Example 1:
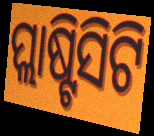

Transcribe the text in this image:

ପ୍ଲାଷ୍ଟିସିଟି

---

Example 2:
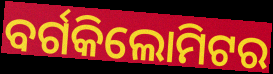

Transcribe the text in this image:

ବର୍ଗକିଲୋମିଟର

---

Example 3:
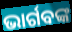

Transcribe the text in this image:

ଭାର୍ଗବଙ୍କ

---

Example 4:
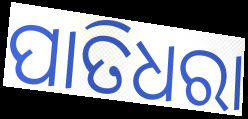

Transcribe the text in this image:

ପାତିଧରା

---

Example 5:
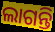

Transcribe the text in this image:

ଲାଗନ୍ତି